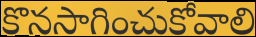
కొనసాగించుకోవాలి